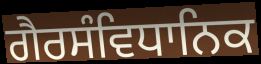
ਗੈਰਸੰਵਿਧਾਨਿਕ